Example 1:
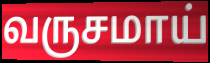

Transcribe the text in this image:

வருசமாய்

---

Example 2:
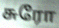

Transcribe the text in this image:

சுரோ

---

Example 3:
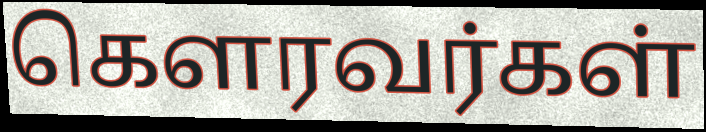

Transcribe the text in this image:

கௌரவர்கள்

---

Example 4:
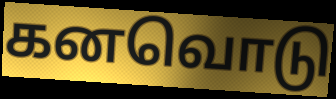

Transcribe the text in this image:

கனவொடு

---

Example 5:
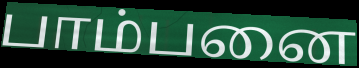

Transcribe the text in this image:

பாம்பனை